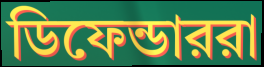
ডিফেন্ডাররা